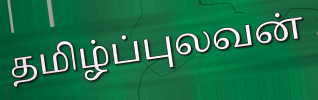
தமிழ்ப்புலவன்